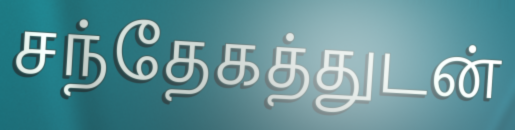
சந்தேகத்துடன்